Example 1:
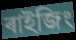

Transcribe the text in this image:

ৰাইজিং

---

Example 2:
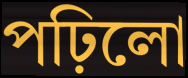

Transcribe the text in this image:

পঢ়িলো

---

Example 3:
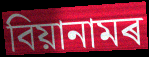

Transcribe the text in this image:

বিয়ানামৰ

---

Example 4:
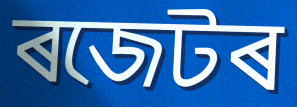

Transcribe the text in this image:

ৰজেটৰ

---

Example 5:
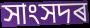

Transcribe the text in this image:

সাংসদৰ